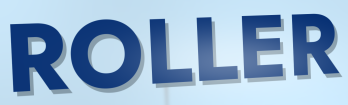
ROLLER